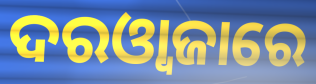
ଦରଓ୍ୱାଜାରେ